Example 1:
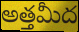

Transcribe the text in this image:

అత్తమీద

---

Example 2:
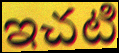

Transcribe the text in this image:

ఇచటి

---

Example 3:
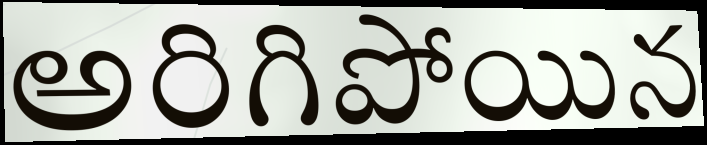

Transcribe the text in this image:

అరిగిపోయిన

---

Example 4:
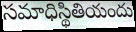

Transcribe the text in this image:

సమాధిస్థితియందు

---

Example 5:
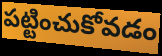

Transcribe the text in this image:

పట్టించుకోవడం